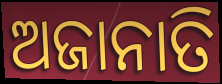
ଅଜାନାତି